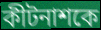
কীটনাশকে